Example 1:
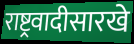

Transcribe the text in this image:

राष्ट्रवादीसारखे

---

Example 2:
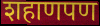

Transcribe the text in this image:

शहाणपण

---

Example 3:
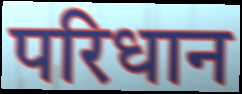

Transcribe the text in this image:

परिधान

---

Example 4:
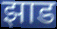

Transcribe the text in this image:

झाड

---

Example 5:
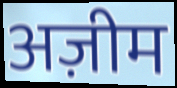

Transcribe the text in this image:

अज़ीम